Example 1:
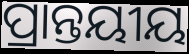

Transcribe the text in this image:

ପ୍ରାନ୍ତୟୀୟ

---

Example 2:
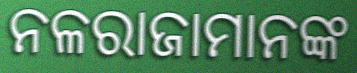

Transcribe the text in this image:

ନଳରାଜାମାନଙ୍କ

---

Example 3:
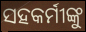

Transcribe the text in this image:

ସହକର୍ମୀଙ୍କୁ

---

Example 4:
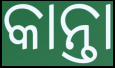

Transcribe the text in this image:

କାନ୍ତା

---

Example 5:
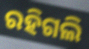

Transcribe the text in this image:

ରହିଗଲି